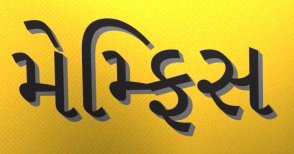
મેમ્ફિસ